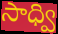
సాధ్వి